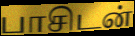
பாசிடன்